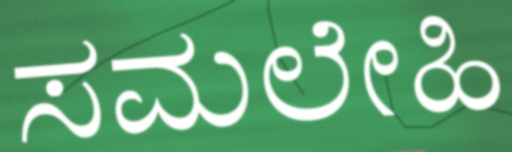
ಸಮಲೇಹಿ